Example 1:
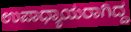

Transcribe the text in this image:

ಉಪಾಧ್ಯಾಯರಾಗಿದ್ದ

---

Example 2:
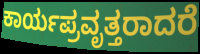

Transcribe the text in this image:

ಕಾರ್ಯಪ್ರವೃತ್ತರಾದರೆ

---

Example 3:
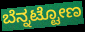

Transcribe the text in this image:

ಬೆನ್ನಟ್ಟೋಣ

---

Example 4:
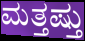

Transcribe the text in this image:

ಮತ್ತಷ್ತು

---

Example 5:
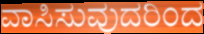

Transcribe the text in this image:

ವಾಸಿಸುವುದರಿಂದ